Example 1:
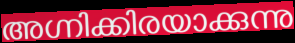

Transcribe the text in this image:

അഗ്നിക്കിരയാക്കുന്നു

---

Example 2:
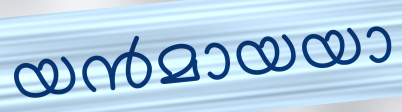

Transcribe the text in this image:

യൻമായയാ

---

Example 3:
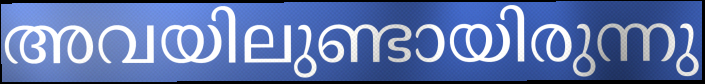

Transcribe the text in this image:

അവയിലുണ്ടായിരുന്നു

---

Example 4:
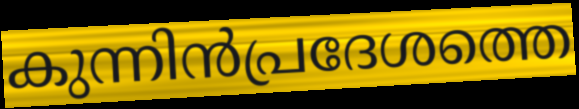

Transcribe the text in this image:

കുന്നിൻപ്രദേശത്തെ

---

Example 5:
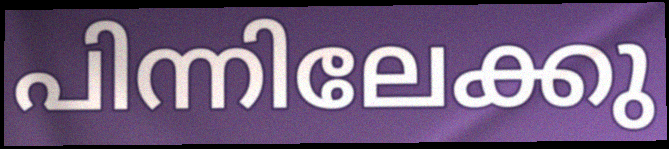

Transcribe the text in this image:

പിന്നിലേക്കു